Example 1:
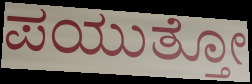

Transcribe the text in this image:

ಪಯುತ್ತೋ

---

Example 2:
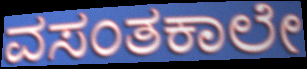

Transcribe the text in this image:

ವಸಂತಕಾಲೇ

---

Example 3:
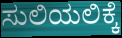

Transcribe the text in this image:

ಸುಲಿಯಲಿಕ್ಕೆ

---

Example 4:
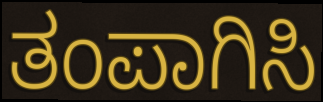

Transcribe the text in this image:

ತಂಪಾಗಿಸಿ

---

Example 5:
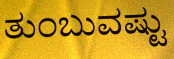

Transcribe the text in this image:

ತುಂಬುವಷ್ಟು